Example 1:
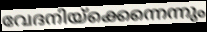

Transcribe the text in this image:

വേദനിയ്ക്കെന്നെന്നും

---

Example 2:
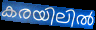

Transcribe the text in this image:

കരയിലിൽ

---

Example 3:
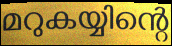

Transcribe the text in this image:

മറുകയ്യിന്റെ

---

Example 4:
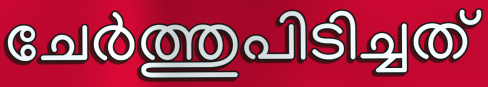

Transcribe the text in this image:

ചേർത്തുപിടിച്ചത്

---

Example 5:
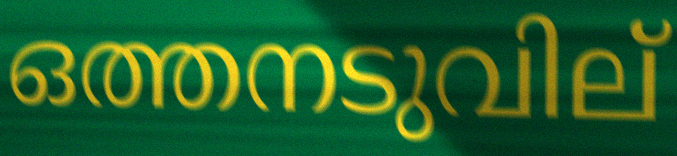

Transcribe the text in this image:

ഒത്തനടുവില്